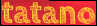
tatano